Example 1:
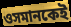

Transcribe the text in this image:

ওসমানকেই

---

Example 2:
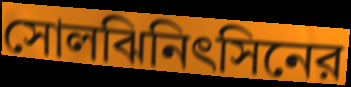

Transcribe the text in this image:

সোলঝিনিৎসিনের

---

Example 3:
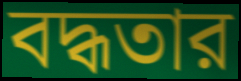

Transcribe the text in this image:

বদ্ধতার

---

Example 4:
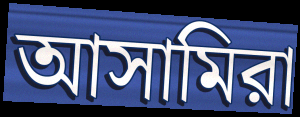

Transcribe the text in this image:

আসামিরা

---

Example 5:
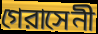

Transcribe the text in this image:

গেরাসেনী